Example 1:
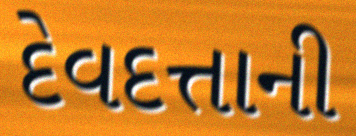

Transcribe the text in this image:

દેવદત્તાની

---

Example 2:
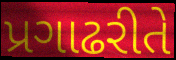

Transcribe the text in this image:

પ્રગાઢરીતે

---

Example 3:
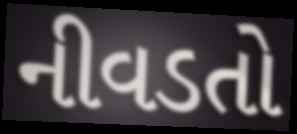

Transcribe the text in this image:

નીવડતો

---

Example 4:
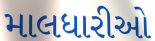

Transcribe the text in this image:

માલધારીઓ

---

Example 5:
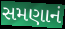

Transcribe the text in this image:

સમણાનં